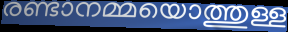
രണ്ടാനമ്മയൊത്തുള്ള